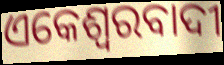
ଏକେଶ୍ଵରବାଦୀ